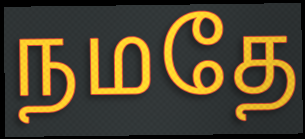
நமதே